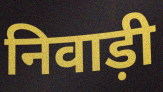
निवाड़ी